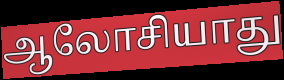
ஆலோசியாது